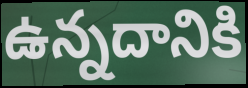
ఉన్నదానికి